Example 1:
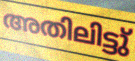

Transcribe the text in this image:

അതിലിട്ടു്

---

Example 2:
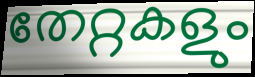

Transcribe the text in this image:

തേറ്റകളും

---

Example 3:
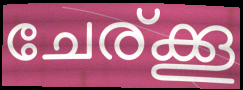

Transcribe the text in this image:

ചേര്ക്കൂ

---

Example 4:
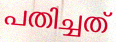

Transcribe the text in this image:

പതിച്ചത്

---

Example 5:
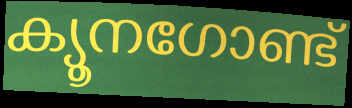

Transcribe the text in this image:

ക്യൂനഗോണ്ട്